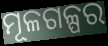
ମୂଳଗଳ୍ପର